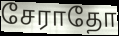
சேராதோ